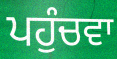
ਪਹੁੰਚਵਾ